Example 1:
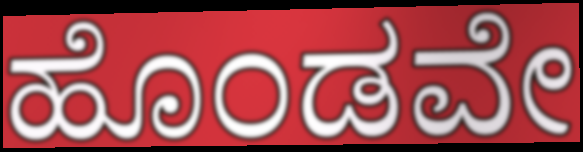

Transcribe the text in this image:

ಹೊಂಡವೇ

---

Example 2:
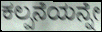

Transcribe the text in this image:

ಕಲ್ಪನೆಯನ್ನೇ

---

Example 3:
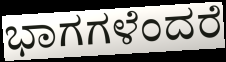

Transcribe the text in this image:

ಭಾಗಗಳೆಂದರೆ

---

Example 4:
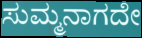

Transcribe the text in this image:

ಸುಮ್ಮನಾಗದೇ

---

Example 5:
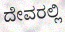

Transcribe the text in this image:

ದೇವರಲ್ಲಿ